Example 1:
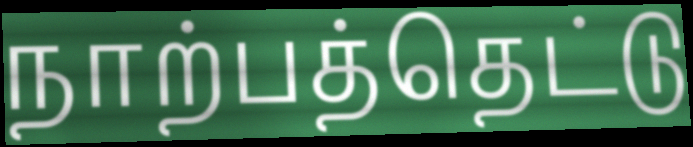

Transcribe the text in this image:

நாற்பத்தெட்டு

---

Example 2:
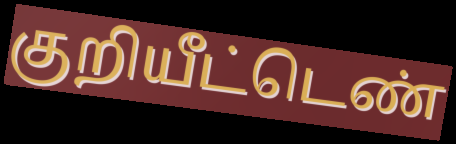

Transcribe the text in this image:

குறியீட்டெண்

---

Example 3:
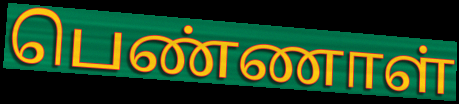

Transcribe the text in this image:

பெண்ணாள்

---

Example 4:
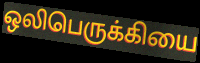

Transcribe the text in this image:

ஒலிபெருக்கியை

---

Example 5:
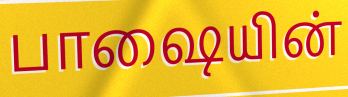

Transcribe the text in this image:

பாஷையின்